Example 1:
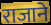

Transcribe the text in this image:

राजाने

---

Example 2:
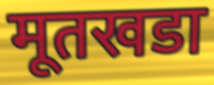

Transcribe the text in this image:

मूतखडा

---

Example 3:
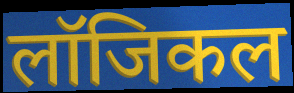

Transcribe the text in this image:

लॉजिकल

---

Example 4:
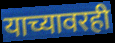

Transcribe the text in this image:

याच्यावरही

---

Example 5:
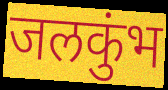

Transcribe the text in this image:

जलकुंभ